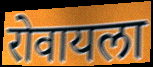
रोवायला